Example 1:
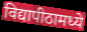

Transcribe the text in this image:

विद्यापीठामध्ये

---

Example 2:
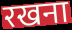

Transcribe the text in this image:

रखना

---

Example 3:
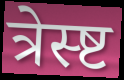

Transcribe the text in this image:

त्रेस्ष्ट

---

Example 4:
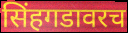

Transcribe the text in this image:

सिंहगडावरच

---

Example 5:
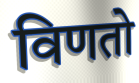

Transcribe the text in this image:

विणतो